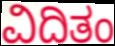
ವಿದಿತಂ